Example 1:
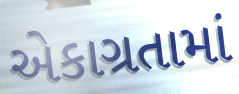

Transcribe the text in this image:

એકાગ્રતામાં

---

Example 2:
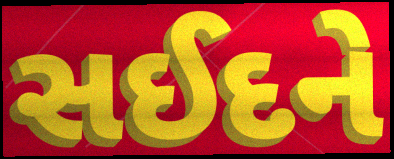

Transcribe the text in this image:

સઈદને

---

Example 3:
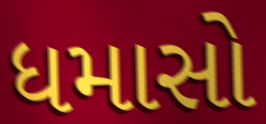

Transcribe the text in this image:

ધમાસો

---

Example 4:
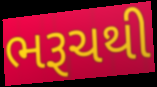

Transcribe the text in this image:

ભરૂચથી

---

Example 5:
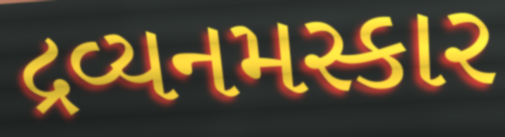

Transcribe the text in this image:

દ્રવ્યનમસ્કાર